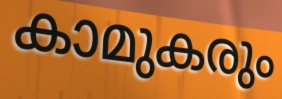
കാമുകരും